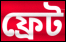
ফ্রেট